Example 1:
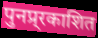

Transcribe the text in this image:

पुनप्र्रकाशित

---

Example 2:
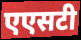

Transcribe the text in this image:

एएसटी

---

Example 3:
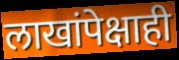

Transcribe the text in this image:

लाखांपेक्षाही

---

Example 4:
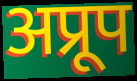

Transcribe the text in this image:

अप्रूप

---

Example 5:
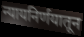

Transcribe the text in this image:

न्यायनिर्णयातून